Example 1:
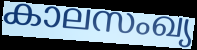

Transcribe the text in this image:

കാലസംഖ്യ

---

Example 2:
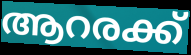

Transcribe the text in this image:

ആറരക്ക്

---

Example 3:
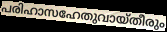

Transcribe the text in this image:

പരിഹാസഹേതുവായ്തീരും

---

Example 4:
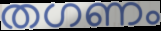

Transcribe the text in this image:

തഗണം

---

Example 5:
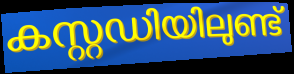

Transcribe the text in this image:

കസ്റ്റഡിയിലുണ്ട്